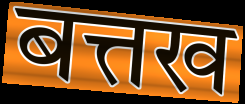
बत्तख